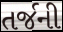
તર્જની